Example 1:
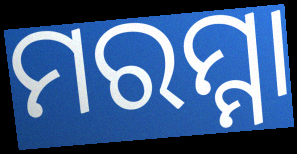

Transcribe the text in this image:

ମରମ୍ମା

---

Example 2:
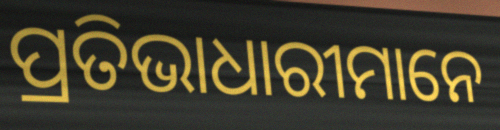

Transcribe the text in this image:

ପ୍ରତିଭାଧାରୀମାନେ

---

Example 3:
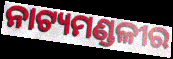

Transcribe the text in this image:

ନାଟ୍ୟମଣ୍ଡଳୀର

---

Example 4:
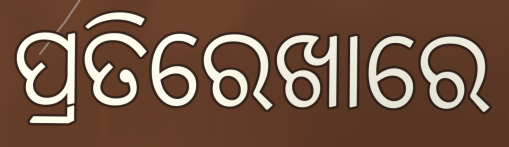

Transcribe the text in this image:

ପ୍ରତିରେଖାରେ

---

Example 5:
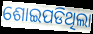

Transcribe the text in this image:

ଶୋଇପଡିଥିଲା